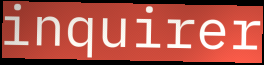
inquirer